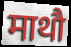
माथौ